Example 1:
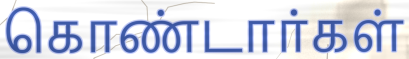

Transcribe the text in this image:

கொண்டார்கள்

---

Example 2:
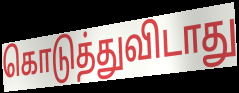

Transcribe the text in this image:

கொடுத்துவிடாது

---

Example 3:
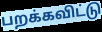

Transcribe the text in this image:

பறக்கவிட்டு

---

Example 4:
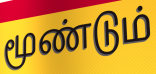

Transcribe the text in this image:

மூண்டும்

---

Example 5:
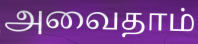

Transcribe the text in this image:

அவைதாம்